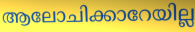
ആലോചിക്കാറേയില്ല